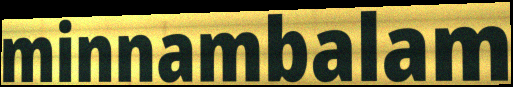
minnambalam